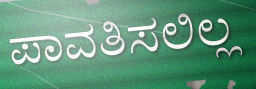
ಪಾವತಿಸಲಿಲ್ಲ